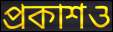
প্রকাশও